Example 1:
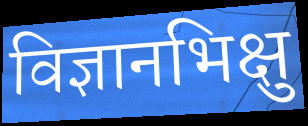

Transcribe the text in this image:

विज्ञानभिक्षु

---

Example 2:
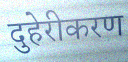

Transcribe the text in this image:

दुहेरीकरण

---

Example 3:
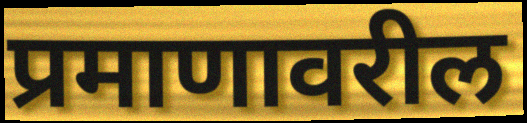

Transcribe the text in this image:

प्रमाणावरील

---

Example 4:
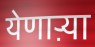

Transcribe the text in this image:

येणाऱ्‍या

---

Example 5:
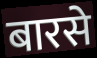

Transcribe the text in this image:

बारसे